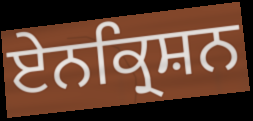
ਏਨਕ੍ਰਿਸ਼ਨ